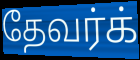
தேவர்க்